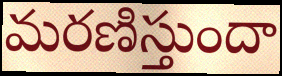
మరణిస్తుందా